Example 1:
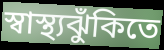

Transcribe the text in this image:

স্বাস্থ্যঝুঁকিতে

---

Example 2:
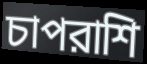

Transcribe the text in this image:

চাপরাশি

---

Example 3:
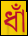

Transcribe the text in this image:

ধাঁ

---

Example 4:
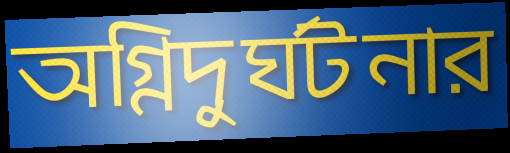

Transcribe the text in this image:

অগ্নিদুর্ঘটনার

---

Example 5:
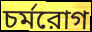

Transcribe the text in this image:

চর্মরোগ